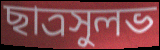
ছাত্রসুলভ